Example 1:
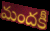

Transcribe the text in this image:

మందకీ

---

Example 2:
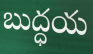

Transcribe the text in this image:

బుద్ధయ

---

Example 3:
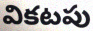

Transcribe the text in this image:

వికటపు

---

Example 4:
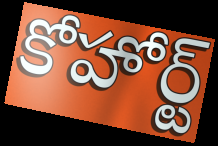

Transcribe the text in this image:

కోహోర్ట్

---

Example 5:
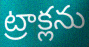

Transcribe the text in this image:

ట్రాక్లను